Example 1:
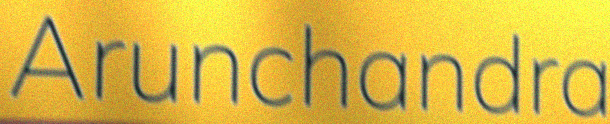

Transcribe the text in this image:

Arunchandra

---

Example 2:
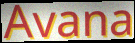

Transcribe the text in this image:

Avana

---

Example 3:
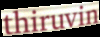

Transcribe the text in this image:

thiruvin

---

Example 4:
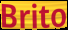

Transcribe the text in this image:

Brito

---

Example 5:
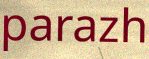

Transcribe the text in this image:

parazh